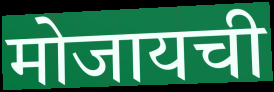
मोजायची